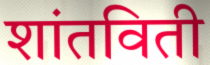
शांतविती